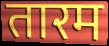
तारम